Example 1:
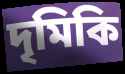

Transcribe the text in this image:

দৃমিকি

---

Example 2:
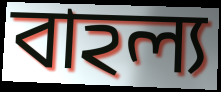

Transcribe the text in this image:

বাহল্য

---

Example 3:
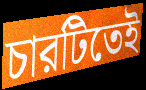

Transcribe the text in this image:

চারটিতেই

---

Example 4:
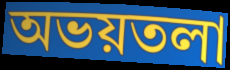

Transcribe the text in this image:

অভয়তলা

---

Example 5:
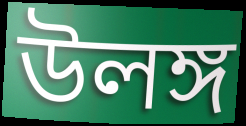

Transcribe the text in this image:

উলঙ্গ